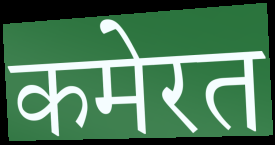
कमेरत